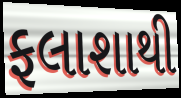
ફલાશાથી